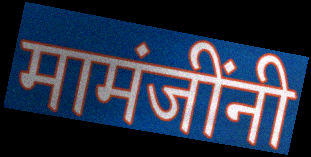
मामंजींनी